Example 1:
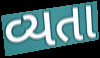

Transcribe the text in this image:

વ્યતા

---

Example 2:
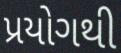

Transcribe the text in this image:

પ્રયોગથી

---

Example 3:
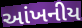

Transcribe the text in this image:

આંખનીય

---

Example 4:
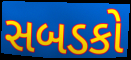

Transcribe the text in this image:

સબડકો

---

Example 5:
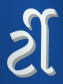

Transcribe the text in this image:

ર્ટી